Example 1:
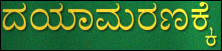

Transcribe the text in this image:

ದಯಾಮರಣಕ್ಕೆ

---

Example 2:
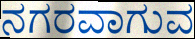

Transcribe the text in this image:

ನಗರವಾಗುವ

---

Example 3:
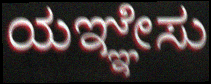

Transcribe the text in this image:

ಯಞ್ಞೇಸು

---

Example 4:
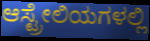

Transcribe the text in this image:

ಆಸ್ಟ್ರೇಲಿಯಗಳಲ್ಲಿ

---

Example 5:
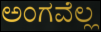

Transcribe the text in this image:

ಅಂಗವೆಲ್ಲ